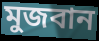
মুজবান